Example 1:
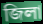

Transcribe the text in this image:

জিলা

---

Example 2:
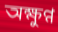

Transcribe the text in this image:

অক্ষুণ্ণ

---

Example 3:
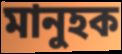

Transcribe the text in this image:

মানুহক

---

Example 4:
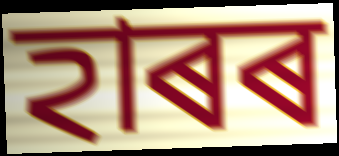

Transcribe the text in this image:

হাৰৰ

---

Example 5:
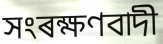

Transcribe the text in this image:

সংৰক্ষণবাদী